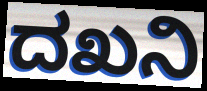
ದಖನಿ